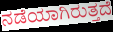
ನಡೆಯಾಗಿರುತ್ತದೆ